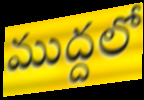
ముద్దలో